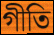
গীতি